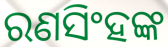
ରଣସିଂହଙ୍କ